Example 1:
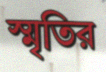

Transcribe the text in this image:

স্মৃতির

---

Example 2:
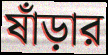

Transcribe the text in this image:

ষাঁড়ার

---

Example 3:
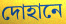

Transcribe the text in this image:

দোহানে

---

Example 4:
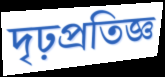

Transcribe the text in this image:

দৃঢ়প্রতিজ্ঞ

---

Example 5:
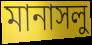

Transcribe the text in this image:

মানাসলু